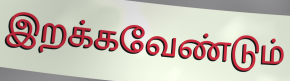
இறக்கவேண்டும்